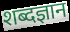
शब्दज्ञान